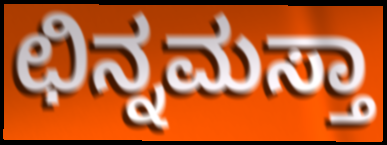
ಛಿನ್ನಮಸ್ತಾ